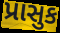
પ્રાસુક